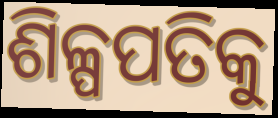
ଶିଳ୍ପପତିକୁ